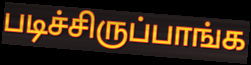
படிச்சிருப்பாங்க